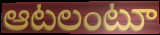
ఆటలంటూ